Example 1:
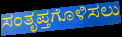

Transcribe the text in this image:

ಸಂತೃಪ್ತಗೊಳಿಸಲು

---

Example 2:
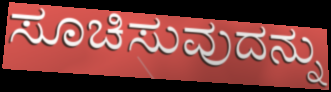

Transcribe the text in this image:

ಸೂಚಿಸುವುದನ್ನು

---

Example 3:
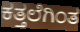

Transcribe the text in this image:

ಕತ್ತಲೆಗಿಂತ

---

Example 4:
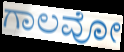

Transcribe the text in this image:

ಗಾಲವೋ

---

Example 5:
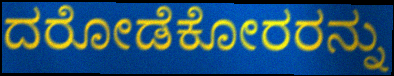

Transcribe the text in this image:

ದರೋಡೆಕೋರರನ್ನು